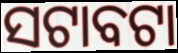
ସଟାବଟା